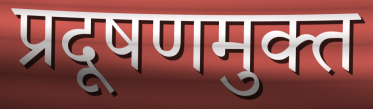
प्रदूषणमुक्त